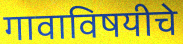
गावाविषयीचे